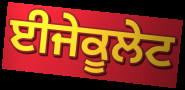
ਈਜੇਕੂਲੇਟ